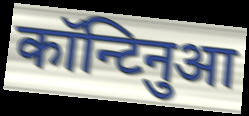
कॉन्टिनुआ